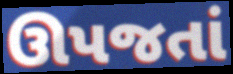
ઊપજતાં